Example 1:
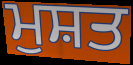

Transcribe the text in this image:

ਮੁਸ਼ਤ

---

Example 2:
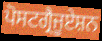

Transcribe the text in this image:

ਪੋਸਟਗ੍ਰੈਜੂਏਸ਼ਨ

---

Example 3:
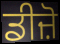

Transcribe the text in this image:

ਡੀਜ਼ੋ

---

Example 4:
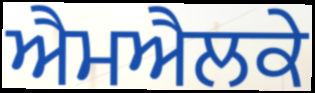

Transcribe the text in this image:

ਐਮਐਲਕੇ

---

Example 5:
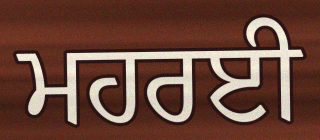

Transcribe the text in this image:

ਮਹਰਈ